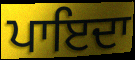
ਪਾਇਦਾ